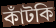
কাঁটকি